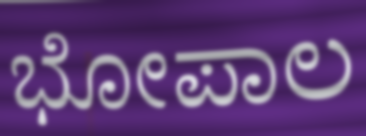
ಭೋಪಾಲ